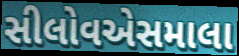
સીલોવએસમાલા